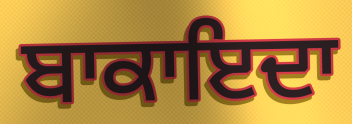
ਬਾਕਾਇਦਾ